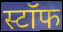
स्टॉफ